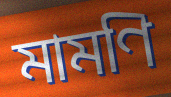
মামণি